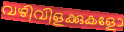
വഴിവിളക്കുകളോ